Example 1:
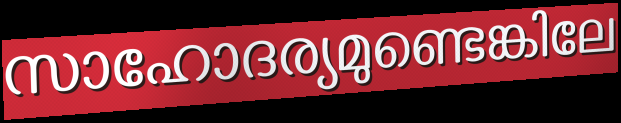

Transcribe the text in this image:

സാഹോദര്യമുണ്ടെങ്കിലേ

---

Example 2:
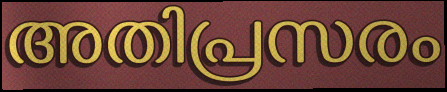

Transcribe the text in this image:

അതിപ്രസരം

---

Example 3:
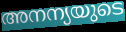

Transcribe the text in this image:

അനന്യയുടെ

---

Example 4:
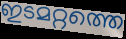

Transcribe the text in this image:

ഇടമറ്റത്തെ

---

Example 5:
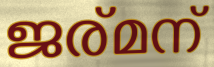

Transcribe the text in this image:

ജര്മന്